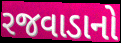
રજવાડાનો